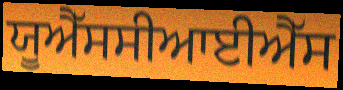
ਯੂਐੱਸਸੀਆਈਐੱਸ